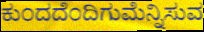
ಕುಂದದೆಂದಿಗುಮೆನ್ನಿಸುವ